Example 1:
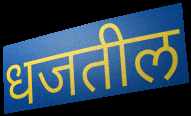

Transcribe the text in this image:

धजतील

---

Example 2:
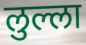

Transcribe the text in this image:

लुल्ला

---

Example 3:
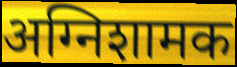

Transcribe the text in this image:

अग्निशामक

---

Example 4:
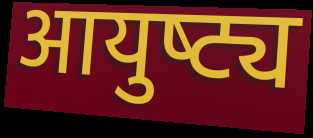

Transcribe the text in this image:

आयुष्ट्य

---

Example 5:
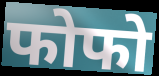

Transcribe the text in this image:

फोफो